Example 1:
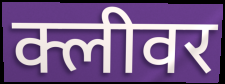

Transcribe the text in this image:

क्लीवर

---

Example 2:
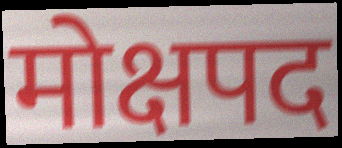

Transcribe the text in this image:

मोक्षपद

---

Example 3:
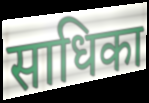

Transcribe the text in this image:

साधिका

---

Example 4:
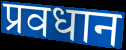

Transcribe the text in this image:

प्रवधान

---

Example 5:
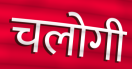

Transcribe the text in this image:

चलोगी